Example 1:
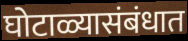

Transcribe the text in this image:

घोटाळ्यासंबंधात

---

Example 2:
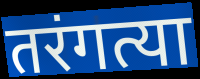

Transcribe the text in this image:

तरंगत्या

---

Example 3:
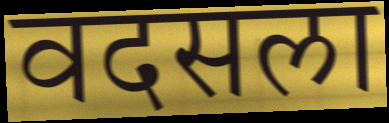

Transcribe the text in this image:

वदसला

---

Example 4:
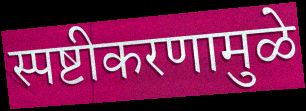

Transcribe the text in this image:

स्पष्टीकरणामुळे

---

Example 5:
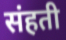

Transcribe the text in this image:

संहती